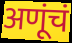
अणूंचं